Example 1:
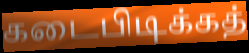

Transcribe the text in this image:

கடைபிடிக்கத்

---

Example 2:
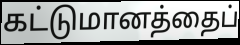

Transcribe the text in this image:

கட்டுமானத்தைப்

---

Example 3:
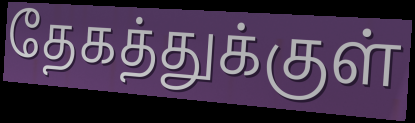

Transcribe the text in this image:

தேகத்துக்குள்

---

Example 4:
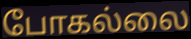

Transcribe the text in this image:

போகல்லை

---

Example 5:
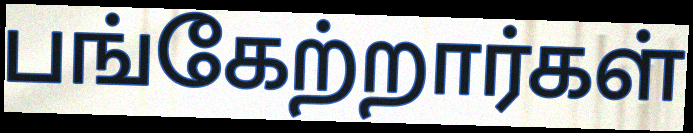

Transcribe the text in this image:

பங்கேற்றார்கள்